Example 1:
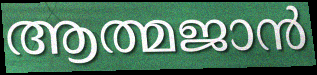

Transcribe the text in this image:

ആത്മജാൻ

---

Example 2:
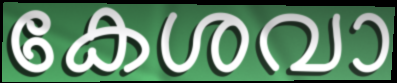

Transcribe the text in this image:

കേശവാ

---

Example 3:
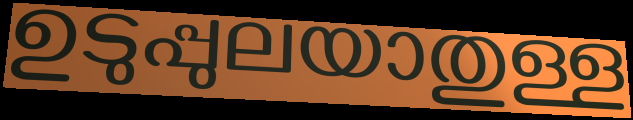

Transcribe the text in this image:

ഉടുപ്പുലയാതുള്ള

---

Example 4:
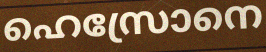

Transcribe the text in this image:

ഹെസ്രോനെ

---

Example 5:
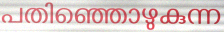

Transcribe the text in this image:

പതിഞ്ഞൊഴുകുന്ന